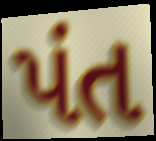
પંત